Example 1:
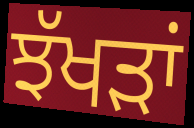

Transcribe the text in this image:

ਝੱਖੜਾਂ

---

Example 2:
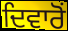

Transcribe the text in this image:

ਦਿਵਾਰੋਂ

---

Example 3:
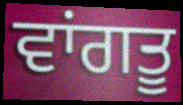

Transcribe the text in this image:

ਵਾਂਗਤੂ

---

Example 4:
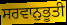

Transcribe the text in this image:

ਸਰਵਾਨੁਭੂਤੀ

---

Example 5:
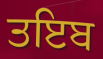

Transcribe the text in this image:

ਤਇਬ